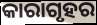
କାରାଗୃହର